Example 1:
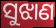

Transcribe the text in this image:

ସୁଝାଣ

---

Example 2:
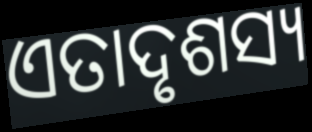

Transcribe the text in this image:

ଏତାଦୃଶସ୍ୟ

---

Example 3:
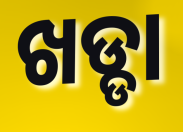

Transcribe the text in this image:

ଖଡ୍ଡା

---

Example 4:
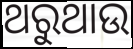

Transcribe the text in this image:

ଥରୁଥାଉ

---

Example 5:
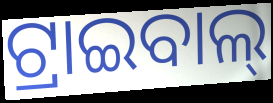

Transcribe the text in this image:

ଟ୍ରାଇବାଲ୍